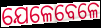
ଯେଳେବେଳେ